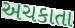
અચકાતા